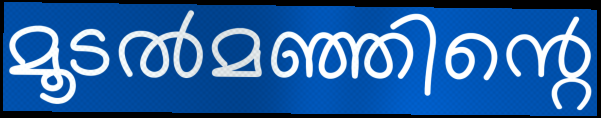
മൂടൽമഞ്ഞിന്റെ